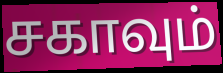
சகாவும்